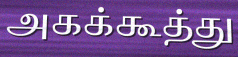
அகக்கூத்து